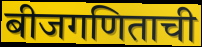
बीजगणिताची